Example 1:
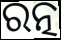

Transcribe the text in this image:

ରତ୍ନ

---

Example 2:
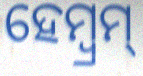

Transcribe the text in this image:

ହେମ୍ବ୍ରମ୍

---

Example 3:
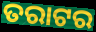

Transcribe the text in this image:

ତରାଟର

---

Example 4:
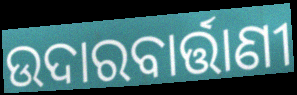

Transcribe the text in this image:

ଉଦାରବାର୍ତ୍ତାଣୀ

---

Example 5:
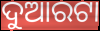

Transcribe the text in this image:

ଦୁଆରଟା